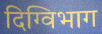
दिग्विभाग